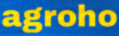
agroho